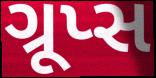
ગ્રૂપ્સ